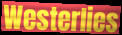
Westerlies